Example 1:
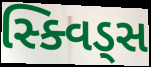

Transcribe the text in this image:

સ્ક્વિડ્સ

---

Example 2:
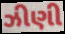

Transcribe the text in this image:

ઝીણી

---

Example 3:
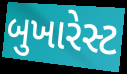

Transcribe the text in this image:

બુખારેસ્ટ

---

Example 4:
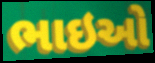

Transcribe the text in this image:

ભાઇઓ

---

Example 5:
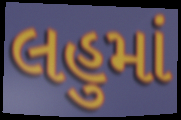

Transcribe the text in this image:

લહુમાં